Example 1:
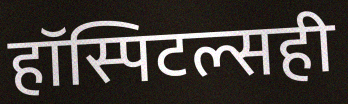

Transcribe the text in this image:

हॉस्पिटल्सही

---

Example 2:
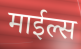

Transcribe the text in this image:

माईल्स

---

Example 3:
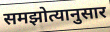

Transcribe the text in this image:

समझोत्यानुसार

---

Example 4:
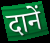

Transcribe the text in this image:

दानें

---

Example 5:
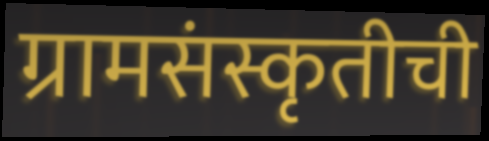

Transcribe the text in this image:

ग्रामसंस्कृतीची